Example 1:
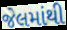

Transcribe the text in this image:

જેલમાંથી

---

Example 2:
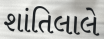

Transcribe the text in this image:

શાંતિલાલે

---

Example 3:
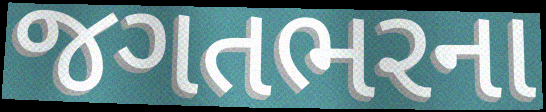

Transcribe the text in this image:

જગતભરના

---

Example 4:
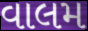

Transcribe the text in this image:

વાલમ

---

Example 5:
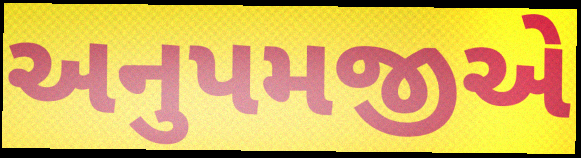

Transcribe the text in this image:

અનુપમજીએ